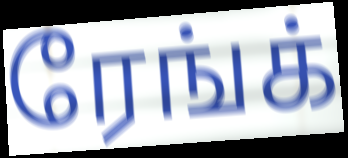
ரேங்க்